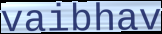
vaibhav